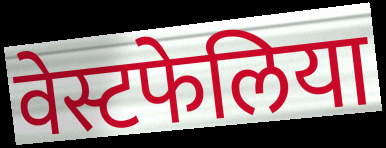
वेस्टफेलिया